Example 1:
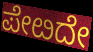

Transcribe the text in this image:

ಪೇೞದೇ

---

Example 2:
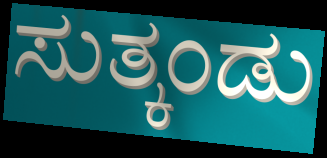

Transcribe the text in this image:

ಸುತ್ಕಂಡು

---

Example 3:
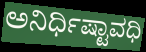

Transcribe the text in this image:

ಅನಿರ್ಧಿಷ್ಟಾವಧಿ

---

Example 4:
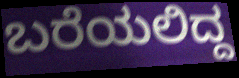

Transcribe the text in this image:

ಬರೆಯಲಿದ್ದ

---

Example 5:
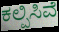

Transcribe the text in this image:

ಕಲ್ಪಿಸಿವೆ